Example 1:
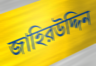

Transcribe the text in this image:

জাহিরউদ্দিন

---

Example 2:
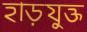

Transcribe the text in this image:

হাড়যুক্ত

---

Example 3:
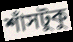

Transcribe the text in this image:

শাঁসটুকু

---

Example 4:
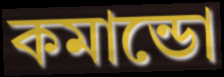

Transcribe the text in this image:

কমান্ডো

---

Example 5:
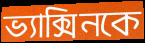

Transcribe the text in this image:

ভ্যাক্সিনকে